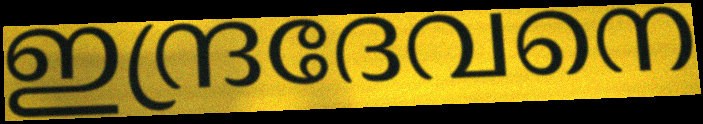
ഇന്ദ്രദേവനെ